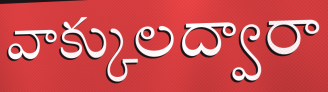
వాక్కులద్వారా